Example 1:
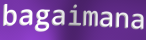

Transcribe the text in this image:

bagaimana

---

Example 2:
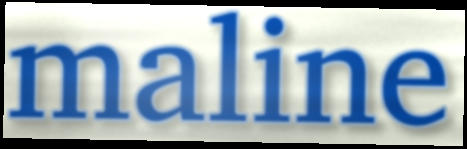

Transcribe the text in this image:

maline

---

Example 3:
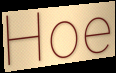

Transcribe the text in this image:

Hoe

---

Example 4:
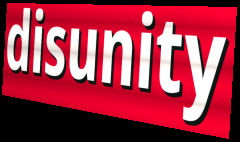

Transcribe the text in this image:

disunity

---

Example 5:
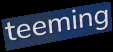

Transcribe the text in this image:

teeming